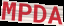
MPDA